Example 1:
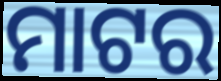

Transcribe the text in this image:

ମାଟର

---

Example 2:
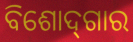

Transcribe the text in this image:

ବିଶୋଦ୍‌ଗାର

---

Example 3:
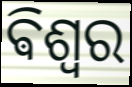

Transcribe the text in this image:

ଵିଶ୍ୱର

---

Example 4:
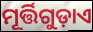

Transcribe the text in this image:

ମୂର୍ତ୍ତିଗୁଡ଼ାଏ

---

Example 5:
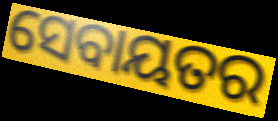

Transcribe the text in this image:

ସେବାୟତର